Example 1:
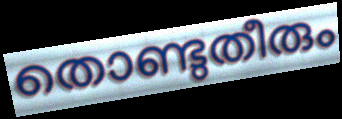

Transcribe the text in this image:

തൊണ്ടുതീരും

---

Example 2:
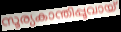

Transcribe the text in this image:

സൂര്യകാന്തിപ്പൂവായ്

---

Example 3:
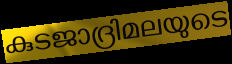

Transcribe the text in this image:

കുടജാദ്രിമലയുടെ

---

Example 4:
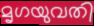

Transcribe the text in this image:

മൃഗയുവതി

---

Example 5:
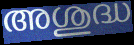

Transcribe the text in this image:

അശുദ്ധ